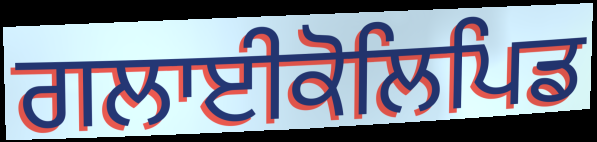
ਗਲਾਈਕੋਲਿਪਿਡ